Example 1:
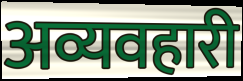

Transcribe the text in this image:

अव्यवहारी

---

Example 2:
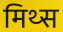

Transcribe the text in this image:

मिथ्स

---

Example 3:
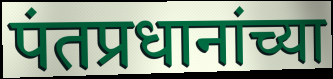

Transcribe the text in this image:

पंतप्रधानांच्या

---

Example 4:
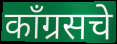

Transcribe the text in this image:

काँग्रसचे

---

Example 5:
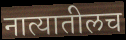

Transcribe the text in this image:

नात्यातीलच